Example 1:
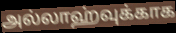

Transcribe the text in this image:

அல்லாஹ்வுக்காக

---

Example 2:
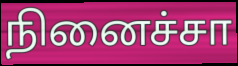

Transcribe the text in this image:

நினைச்சா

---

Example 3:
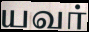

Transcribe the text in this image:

யவர்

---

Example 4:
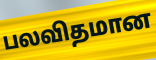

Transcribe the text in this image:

பலவிதமான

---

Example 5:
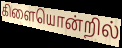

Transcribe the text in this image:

கிளையொன்றில்